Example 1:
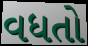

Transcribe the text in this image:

વધતો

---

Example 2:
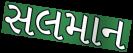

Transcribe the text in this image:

સલમાન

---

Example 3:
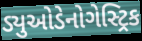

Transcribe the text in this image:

ડ્યુઓડેનોગેસ્ટ્રિક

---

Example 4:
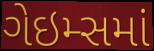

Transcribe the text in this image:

ગેઇમ્સમાં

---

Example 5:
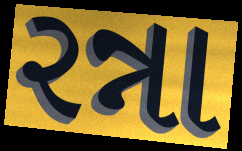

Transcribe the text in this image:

રન્ના